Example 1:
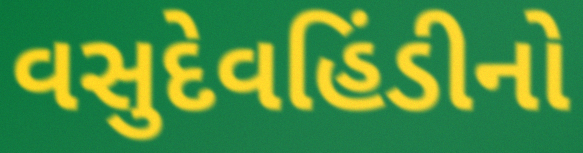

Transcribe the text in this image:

વસુદેવહિંડીનો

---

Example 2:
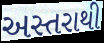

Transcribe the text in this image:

અસ્તરાથી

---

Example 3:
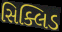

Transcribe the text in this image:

સિક્લિડ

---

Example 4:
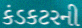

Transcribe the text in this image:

કંડકટરની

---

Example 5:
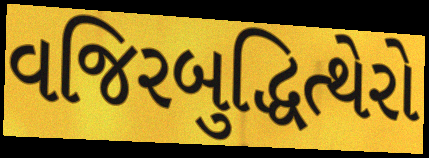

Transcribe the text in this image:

વજિરબુદ્ધિત્થેરો